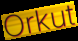
Orkut